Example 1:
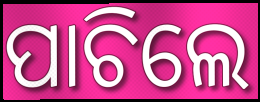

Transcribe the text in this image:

ପାଚିଲେ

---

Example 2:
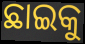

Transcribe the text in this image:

ଛାଇକୁ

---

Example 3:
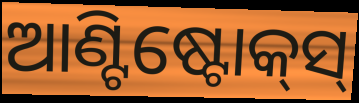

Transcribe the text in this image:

ଆଣ୍ଟିଷ୍ଟୋକ୍‍ସ୍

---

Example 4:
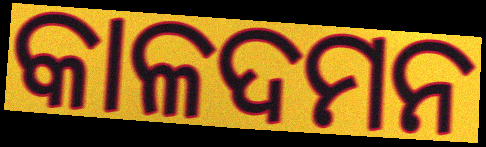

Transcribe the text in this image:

କାଳଦମନ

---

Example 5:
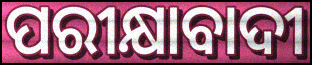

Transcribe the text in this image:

ପରୀକ୍ଷାବାଦୀ